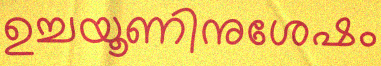
ഉച്ചയൂണിനുശേഷം